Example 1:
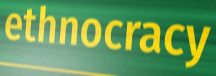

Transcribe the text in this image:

ethnocracy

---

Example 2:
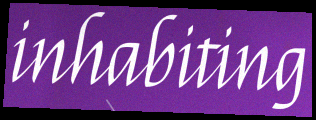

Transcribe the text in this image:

inhabiting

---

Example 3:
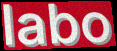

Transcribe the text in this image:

labo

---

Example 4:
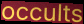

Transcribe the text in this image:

occults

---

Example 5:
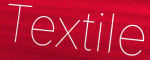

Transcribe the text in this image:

Textile